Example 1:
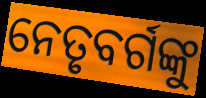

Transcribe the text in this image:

ନେତୃବର୍ଗଙ୍କୁ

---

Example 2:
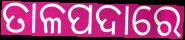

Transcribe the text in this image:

ତାଳପଦାରେ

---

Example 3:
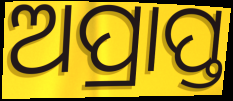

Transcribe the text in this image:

ଅପ୍ରାପ୍ତ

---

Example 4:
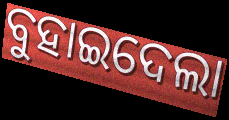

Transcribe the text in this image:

ବୁହାଇଦେଲା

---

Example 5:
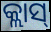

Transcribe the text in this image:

କ୍ଲାସ୍